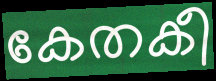
കേതകീ